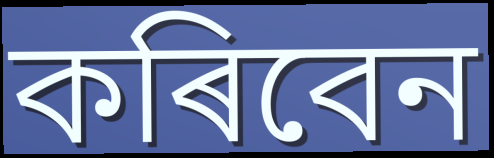
কৰিবেন